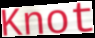
Knot